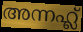
അന്നഹ്ല്